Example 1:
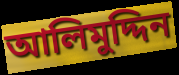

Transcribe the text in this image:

আলিমুদ্দিন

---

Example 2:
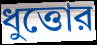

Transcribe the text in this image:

ধুত্তোর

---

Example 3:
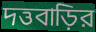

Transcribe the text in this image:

দত্তবাড়ির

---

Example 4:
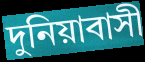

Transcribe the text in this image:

দুনিয়াবাসী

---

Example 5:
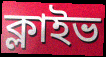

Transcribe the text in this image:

ক্লাইভ